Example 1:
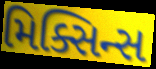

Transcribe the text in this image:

મિક્સિન્સ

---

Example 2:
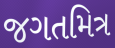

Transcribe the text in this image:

જગતમિત્ર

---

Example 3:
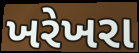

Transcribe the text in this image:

ખરેખરા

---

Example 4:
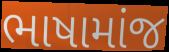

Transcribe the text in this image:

ભાષામાંજ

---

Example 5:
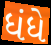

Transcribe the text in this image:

ધંધે